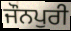
ਜੌਨਪੁਰੀ